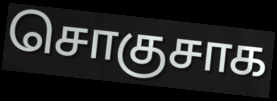
சொகுசாக